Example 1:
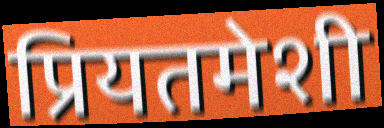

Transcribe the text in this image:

प्रियतमेशी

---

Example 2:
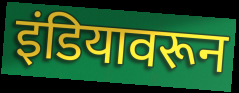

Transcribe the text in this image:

इंडियावरून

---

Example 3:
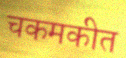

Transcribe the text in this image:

चकमकीत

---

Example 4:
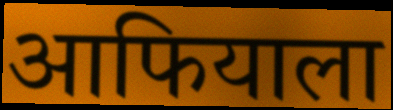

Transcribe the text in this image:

आफियाला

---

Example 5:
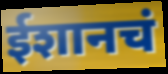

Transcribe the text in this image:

ईशानचं